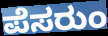
ಪೆಸರುಂ